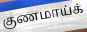
குணமாய்க்